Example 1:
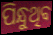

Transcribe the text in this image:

ପିନ୍ଧୁଥିବ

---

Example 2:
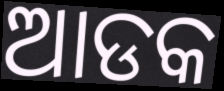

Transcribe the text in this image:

ଆଡକ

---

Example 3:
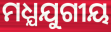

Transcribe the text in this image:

ମଧ୍ଯଯୁଗୀୟ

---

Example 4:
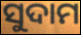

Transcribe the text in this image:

ସୁଦାମ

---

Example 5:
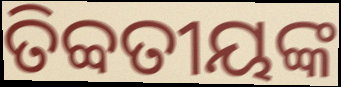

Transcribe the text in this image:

ତିବ୍ବତୀୟଙ୍କ